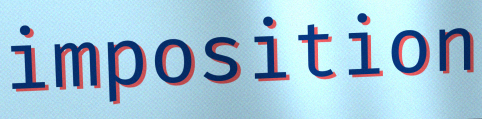
imposition